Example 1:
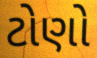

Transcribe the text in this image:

ટોણો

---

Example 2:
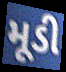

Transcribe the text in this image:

મૂડી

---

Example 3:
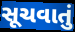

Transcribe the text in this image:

સૂચવાતું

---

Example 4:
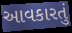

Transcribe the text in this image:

આવકારતું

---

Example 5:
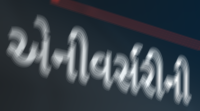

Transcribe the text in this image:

એનીવર્સરીની